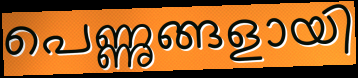
പെണ്ണുങ്ങളായി